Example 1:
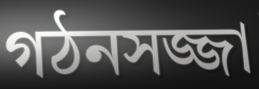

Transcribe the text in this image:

গঠনসজ্জা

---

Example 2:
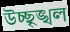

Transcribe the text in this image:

উচ্ছৃঙ্খল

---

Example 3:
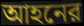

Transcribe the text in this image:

আহনের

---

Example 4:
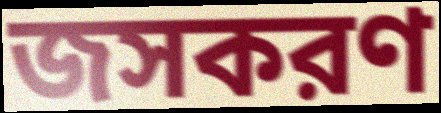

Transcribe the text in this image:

জসকরণ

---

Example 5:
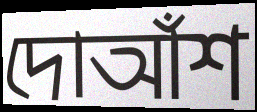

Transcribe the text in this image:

দোআঁশ